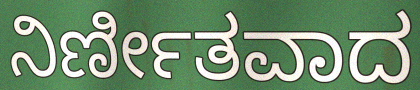
ನಿರ್ಣೀತವಾದ